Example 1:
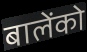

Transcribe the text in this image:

बालेंको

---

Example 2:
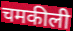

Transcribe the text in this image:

चमकीली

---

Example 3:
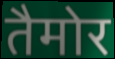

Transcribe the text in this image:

तैमोर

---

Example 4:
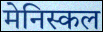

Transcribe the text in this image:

मेनिस्कल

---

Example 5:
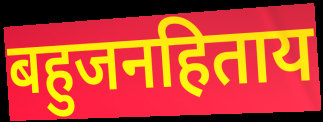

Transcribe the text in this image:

बहुजनहिताय